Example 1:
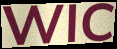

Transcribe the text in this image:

WIC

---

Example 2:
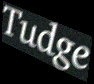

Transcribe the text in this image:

Tudge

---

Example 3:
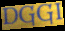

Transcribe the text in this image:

DGGI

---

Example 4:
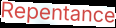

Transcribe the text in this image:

Repentance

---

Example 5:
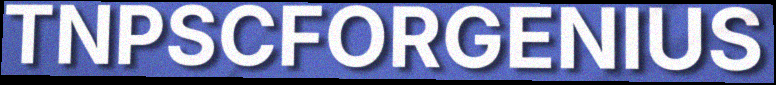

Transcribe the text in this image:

TNPSCFORGENIUS